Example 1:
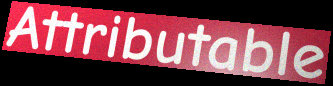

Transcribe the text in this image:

Attributable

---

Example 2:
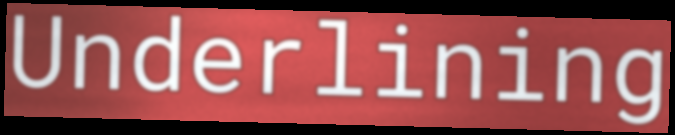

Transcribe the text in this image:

Underlining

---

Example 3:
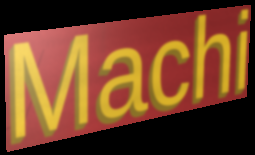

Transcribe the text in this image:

Machi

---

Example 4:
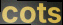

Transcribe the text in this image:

cots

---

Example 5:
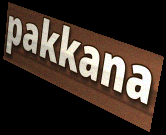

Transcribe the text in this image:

pakkana